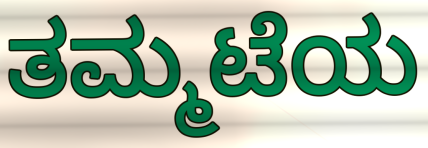
ತಮ್ಮಟೆಯ